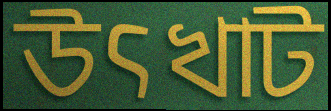
উৎখাট